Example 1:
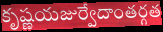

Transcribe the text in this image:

కృష్ణయజుర్వేదాంతర్గత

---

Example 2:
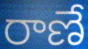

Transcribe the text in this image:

రాణే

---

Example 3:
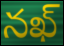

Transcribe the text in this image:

నఖ్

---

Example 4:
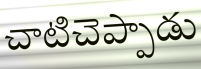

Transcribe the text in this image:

చాటిచెప్పాడు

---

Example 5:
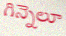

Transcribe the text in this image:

గిన్నెలూ